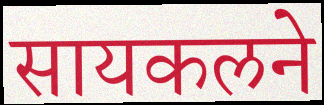
सायकलने